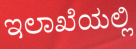
ಇಲಾಖೆಯಲ್ಲಿ